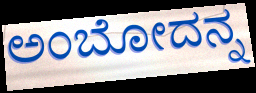
ಅಂಬೋದನ್ನ